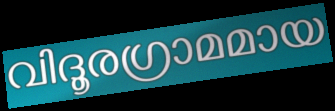
വിദൂരഗ്രാമമായ